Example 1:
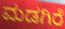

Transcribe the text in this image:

ಮಡಗಿರೆ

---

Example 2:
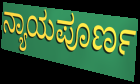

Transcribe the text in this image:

ನ್ಯಾಯಪೂರ್ಣ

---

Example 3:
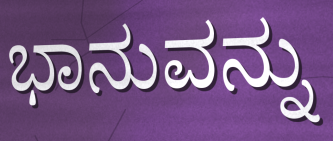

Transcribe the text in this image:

ಭಾನುವನ್ನು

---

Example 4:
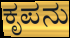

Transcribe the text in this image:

ಕೃಪನು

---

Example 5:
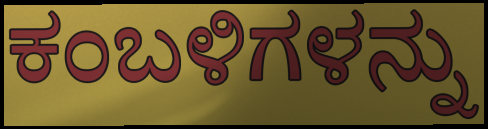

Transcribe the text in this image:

ಕಂಬಳಿಗಳನ್ನು